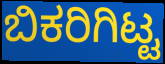
ಬಿಕರಿಗಿಟ್ಟ